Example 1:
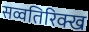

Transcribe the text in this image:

सव्वतिरिक्ख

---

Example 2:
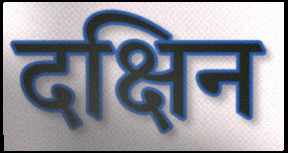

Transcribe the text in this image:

दक्षिन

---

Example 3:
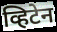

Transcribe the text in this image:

व्हिटेन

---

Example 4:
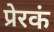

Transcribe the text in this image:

प्रेरकं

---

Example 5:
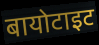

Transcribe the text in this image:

बायोटाइट